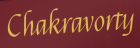
Chakravorty